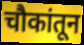
चौकांतून